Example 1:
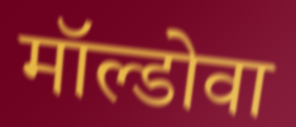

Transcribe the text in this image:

मॉल्डोवा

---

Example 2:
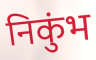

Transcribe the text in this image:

निकुंभ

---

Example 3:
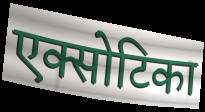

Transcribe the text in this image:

एक्सोटिका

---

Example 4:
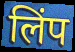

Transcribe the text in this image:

लिंप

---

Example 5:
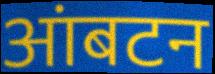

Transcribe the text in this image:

आंबटन